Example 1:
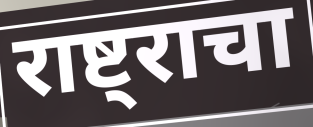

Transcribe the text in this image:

राष्ट्राचा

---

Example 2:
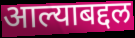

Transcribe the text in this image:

आल्याबद्दल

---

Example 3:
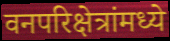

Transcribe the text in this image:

वनपरिक्षेत्रांमध्ये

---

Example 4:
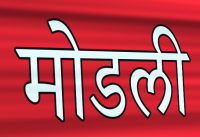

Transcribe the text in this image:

मोडली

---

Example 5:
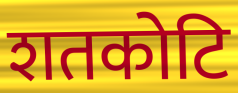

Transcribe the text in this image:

शतकोटि